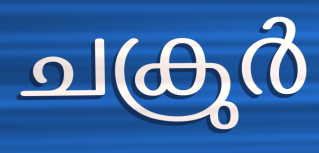
ചക്രുർ